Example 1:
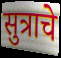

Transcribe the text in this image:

सुत्राचे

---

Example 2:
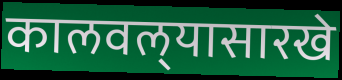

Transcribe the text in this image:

कालवल्यासारखे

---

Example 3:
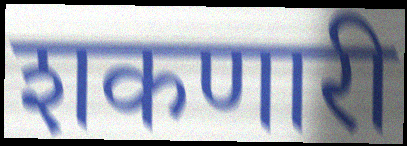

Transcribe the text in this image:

शकणारी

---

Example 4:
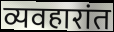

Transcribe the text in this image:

व्यवहारांत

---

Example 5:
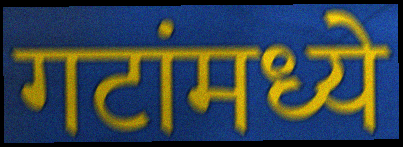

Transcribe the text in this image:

गटांमध्ये